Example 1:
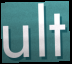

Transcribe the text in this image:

ult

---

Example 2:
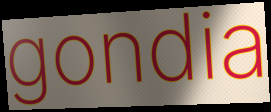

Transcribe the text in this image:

gondia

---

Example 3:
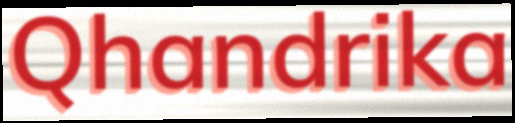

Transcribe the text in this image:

Qhandrika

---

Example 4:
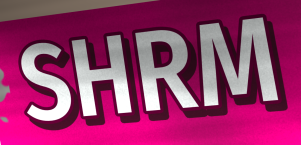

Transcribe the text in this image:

SHRM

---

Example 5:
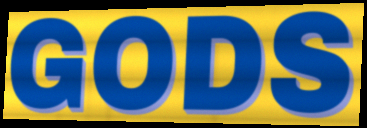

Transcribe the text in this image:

GODS